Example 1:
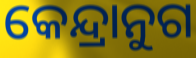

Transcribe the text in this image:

କେନ୍ଦ୍ରାନୁଗ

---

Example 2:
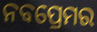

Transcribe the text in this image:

ନବପ୍ରେମର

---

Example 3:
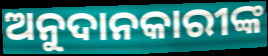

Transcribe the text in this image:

ଅନୁଦାନକାରୀଙ୍କ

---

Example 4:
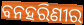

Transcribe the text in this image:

ବନହରିଣୀର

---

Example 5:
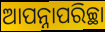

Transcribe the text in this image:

ଆପନ୍ନାପରିଚ୍ଛା